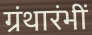
ग्रंथारंभीं